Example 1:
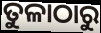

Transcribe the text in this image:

ତୁଳାଠାରୁ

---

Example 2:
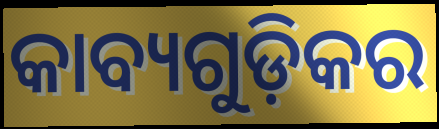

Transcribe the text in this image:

କାବ୍ୟଗୁଡ଼ିକର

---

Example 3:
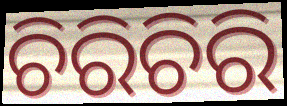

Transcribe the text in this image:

ଚିରିଚିରି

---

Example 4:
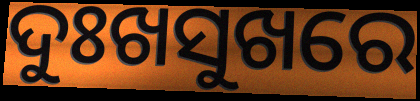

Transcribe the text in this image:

ଦୁଃଖସୁଖରେ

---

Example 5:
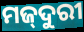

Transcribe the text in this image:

ମଜ୍‌ଦୁରୀ